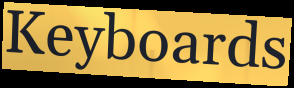
Keyboards